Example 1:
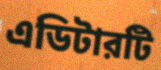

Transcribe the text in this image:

এডিটারটি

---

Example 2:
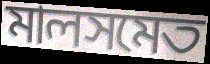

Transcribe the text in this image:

মালসমেত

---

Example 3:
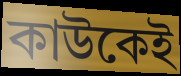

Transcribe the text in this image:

কাউকেই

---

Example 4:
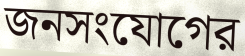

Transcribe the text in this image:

জনসংযোগের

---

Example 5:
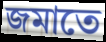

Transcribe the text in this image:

জমাতে